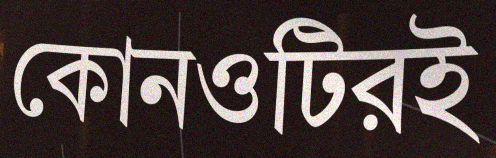
কোনওটিরই